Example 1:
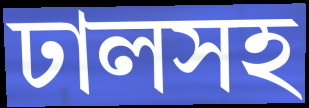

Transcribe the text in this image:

ঢালসহ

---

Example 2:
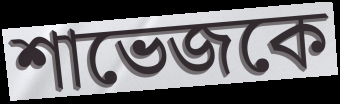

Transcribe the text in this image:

শাভেজকে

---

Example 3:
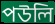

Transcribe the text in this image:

পউলি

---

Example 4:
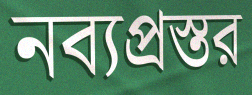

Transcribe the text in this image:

নব্যপ্রস্তর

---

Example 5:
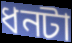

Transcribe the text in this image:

ধনটা